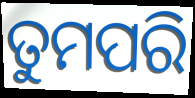
ତୁମପରି